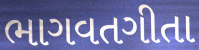
ભાગવતગીતા